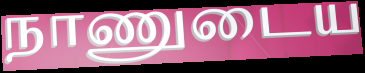
நாணுடைய